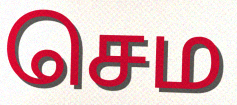
செம